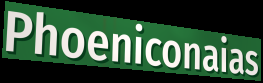
Phoeniconaias